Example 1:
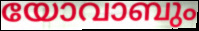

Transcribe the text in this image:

യോവാബും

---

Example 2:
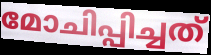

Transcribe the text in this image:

മോചിപ്പിച്ചത്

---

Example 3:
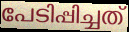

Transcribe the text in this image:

പേടിപ്പിച്ചത്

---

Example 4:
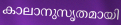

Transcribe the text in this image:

കാലാനുസൃതമായി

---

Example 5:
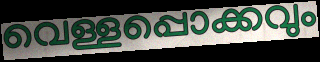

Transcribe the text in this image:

വെള്ളപ്പൊക്കവും